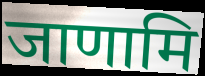
जाणामि